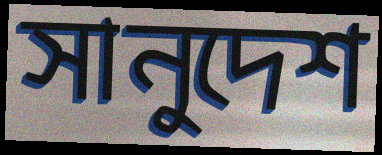
সানুদেশ